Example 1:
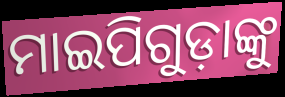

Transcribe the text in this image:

ମାଇପିଗୁଡ଼ାଙ୍କୁ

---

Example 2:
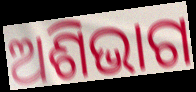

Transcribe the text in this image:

ଅଶିଭାଗ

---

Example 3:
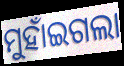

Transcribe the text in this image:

ମୁହାଁଇଗଲା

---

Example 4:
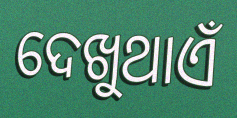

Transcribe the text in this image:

ଦେଖୁଥାଏଁ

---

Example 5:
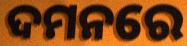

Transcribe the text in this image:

ଦମନରେ